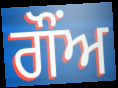
ਗੌਂਅ